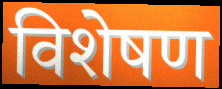
विशेषण